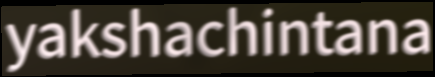
yakshachintana